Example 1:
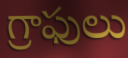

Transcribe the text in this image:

గ్రాఫులు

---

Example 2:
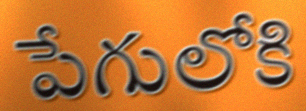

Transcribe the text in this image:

పేగులోకి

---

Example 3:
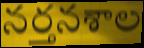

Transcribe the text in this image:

నర్తనశాల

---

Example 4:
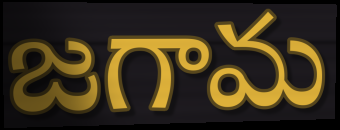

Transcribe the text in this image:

జగామ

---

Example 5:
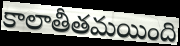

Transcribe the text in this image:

కాలాతీతమయింది